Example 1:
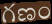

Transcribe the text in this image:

గణం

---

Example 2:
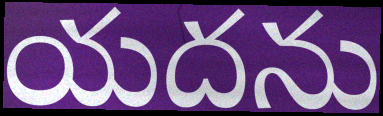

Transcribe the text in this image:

యదను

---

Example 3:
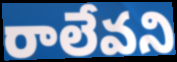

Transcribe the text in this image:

రాలేవని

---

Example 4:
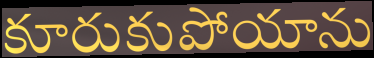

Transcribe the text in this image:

కూరుకుపోయాను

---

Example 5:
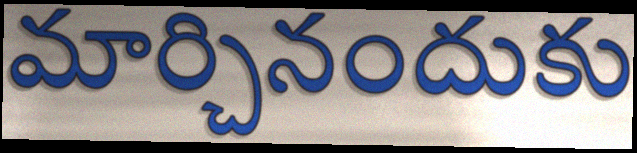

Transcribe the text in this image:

మార్చినందుకు